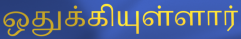
ஒதுக்கியுள்ளார்